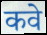
कवे